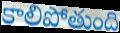
కాలిపోతుంది